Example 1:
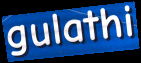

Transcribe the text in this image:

gulathi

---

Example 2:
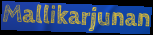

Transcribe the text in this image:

Mallikarjunan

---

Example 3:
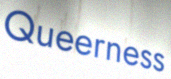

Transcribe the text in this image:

Queerness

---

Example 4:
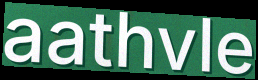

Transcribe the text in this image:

aathvle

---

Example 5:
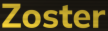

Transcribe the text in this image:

Zoster